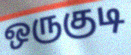
ஒருகுடி